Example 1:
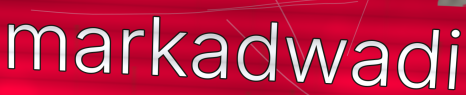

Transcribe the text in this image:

markadwadi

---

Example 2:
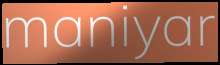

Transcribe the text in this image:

maniyar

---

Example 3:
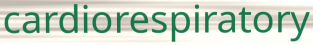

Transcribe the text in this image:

cardiorespiratory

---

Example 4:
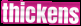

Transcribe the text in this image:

thickens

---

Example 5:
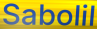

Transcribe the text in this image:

Sabolil